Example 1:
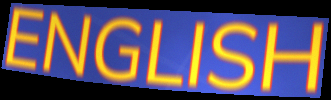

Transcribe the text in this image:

ENGLISH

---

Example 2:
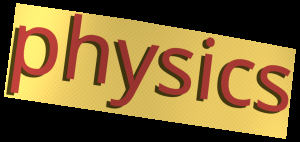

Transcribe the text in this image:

physics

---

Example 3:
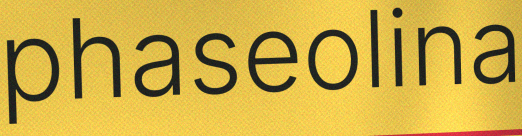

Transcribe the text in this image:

phaseolina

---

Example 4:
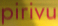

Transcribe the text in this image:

pirivu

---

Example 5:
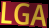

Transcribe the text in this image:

LGA